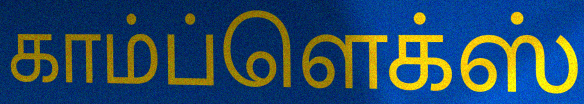
காம்ப்ளெக்ஸ்